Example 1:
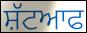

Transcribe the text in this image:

ਸ਼ੱਟਆਫ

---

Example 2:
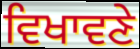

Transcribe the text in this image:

ਵਿਖਾਵਣੇ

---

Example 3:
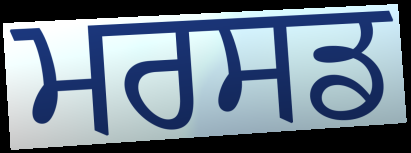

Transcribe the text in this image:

ਮਰਸਡ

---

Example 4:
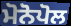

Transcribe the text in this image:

ਮੋਨੋਪੋਲ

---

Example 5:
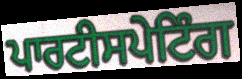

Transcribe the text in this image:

ਪਾਰਟੀਸਪੇਟਿੰਗ